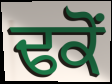
ਢਕੋਂ